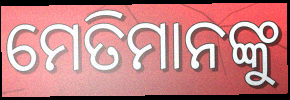
ମେତିମାନଙ୍କୁ